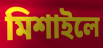
মিশাইলে